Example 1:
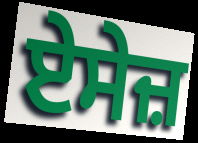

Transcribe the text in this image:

ਏਸੇਜ਼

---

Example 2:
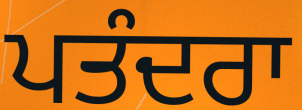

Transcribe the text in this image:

ਪਤੰਦਰਾ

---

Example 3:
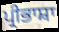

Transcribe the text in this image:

ਪ੍ਰੀਭਾਸ਼ਾ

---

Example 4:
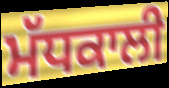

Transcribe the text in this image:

ਮੱਧਕਾਲੀ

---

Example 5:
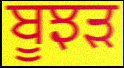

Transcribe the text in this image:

ਬੂਝੜ